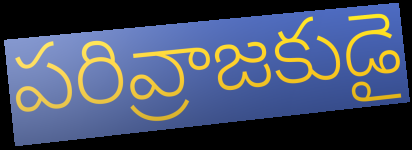
పరివ్రాజకుడై